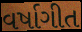
વર્ષાગીત